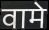
वामे